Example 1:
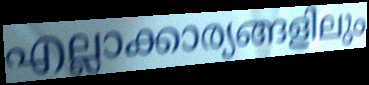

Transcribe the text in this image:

എല്ലാക്കാര്യങ്ങളിലും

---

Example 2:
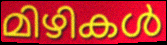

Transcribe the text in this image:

മിഴികൾ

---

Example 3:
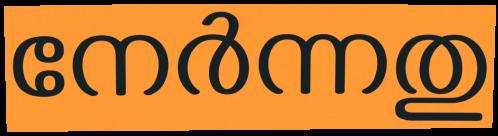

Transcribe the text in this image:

നേർന്നതു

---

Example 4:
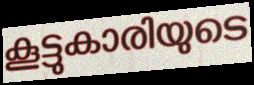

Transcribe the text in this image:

കൂട്ടുകാരിയുടെ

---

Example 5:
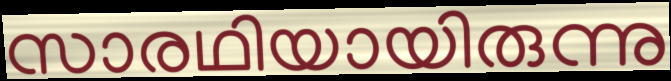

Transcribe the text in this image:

സാരഥിയായിരുന്നു